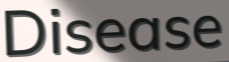
Disease